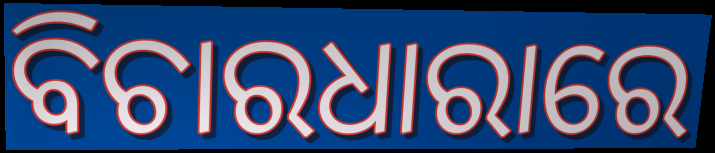
ବିଚାରଧାରାରେ